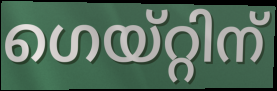
ഗെയ്റ്റിന്